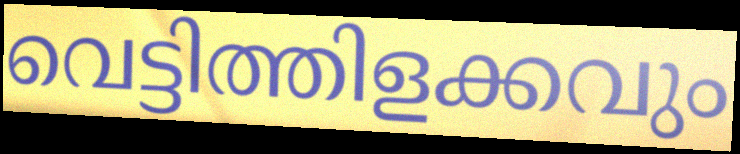
വെട്ടിത്തിളക്കവും